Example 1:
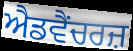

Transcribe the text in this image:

ਐਡਵੈਂਚਰਜ਼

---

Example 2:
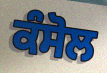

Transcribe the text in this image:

ਕੰਸੋਲ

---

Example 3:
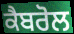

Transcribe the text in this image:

ਕੈਬਰੋਲ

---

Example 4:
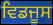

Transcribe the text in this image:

ਵਿਡਜੂਸ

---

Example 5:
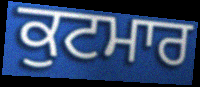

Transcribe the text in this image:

ਕੁਟਮਾਰ